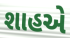
શાહએ